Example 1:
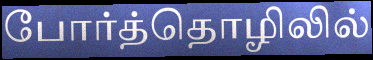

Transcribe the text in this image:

போர்த்தொழிலில்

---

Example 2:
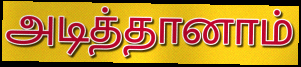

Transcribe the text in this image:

அடித்தானாம்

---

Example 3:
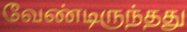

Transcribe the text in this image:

வேண்டிருந்தது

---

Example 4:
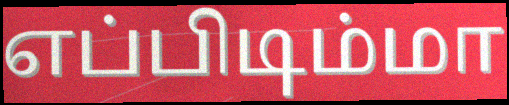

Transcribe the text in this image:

எப்பிடிம்மா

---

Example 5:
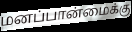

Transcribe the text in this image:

மனப்பான்மைக்கு